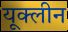
यूक्लीन